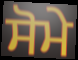
ਸੋਮੇ